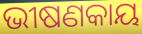
ଭୀଷଣକାୟ